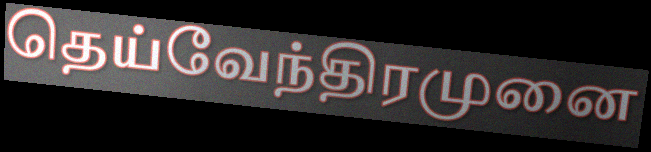
தெய்வேந்திரமுனை